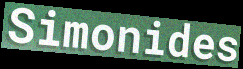
Simonides